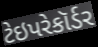
ટેઇપરેકૉર્ડર